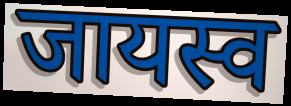
जायस्व